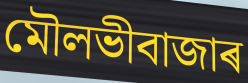
মৌলভীবাজাৰ